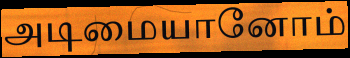
அடிமையானோம்